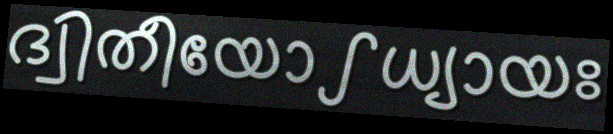
ദ്വിതീയോഽധ്യായഃ